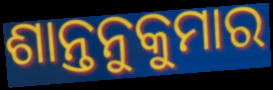
ଶାନ୍ତନୁକୁମାର